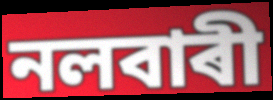
নলবাৰী